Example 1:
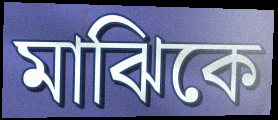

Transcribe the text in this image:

মাঝিকে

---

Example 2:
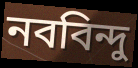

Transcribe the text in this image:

নববিন্দু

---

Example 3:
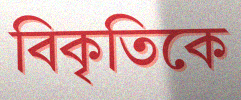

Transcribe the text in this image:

বিকৃতিকে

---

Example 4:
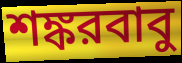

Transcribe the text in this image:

শঙ্করবাবু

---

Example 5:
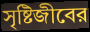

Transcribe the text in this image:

সৃষ্টিজীবের